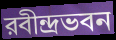
রবীন্দ্রভবন